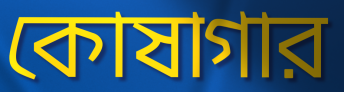
কোষাগার